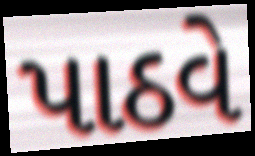
પાઠવે